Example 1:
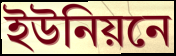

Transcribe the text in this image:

ইউনিয়নে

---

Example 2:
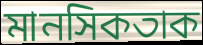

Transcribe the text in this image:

মানসিকতাক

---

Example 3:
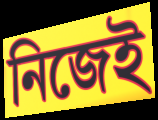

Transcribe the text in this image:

নিজেই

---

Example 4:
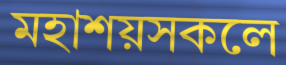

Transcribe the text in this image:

মহাশয়সকলে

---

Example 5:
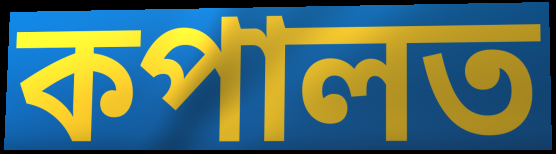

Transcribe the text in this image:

কপালত